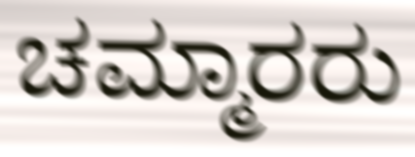
ಚಮ್ಮಾರರು